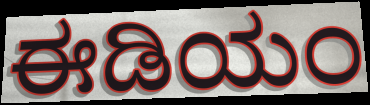
ಈಡಿಯಂ